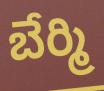
బేర్మి